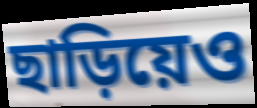
ছাড়িয়েও